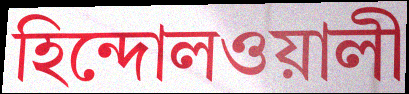
হিন্দোলওয়ালী